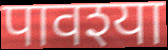
पावश्या